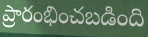
ప్రారంభించబడింది